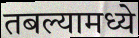
तबल्यामध्ये